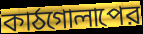
কাঠগোলাপের